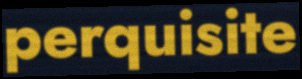
perquisite